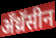
अँथ्रॅसीन